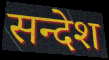
सन्देश